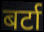
बर्टा